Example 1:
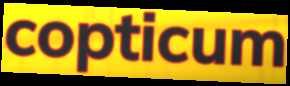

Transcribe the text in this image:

copticum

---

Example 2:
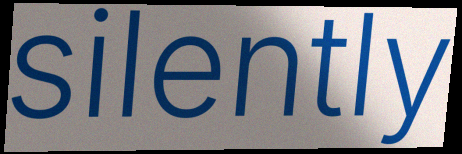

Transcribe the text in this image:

silently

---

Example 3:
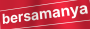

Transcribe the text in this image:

bersamanya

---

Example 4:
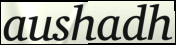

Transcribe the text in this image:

aushadh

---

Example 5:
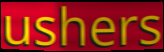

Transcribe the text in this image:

ushers